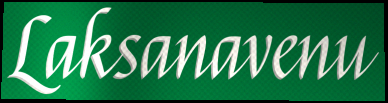
Laksanavenu